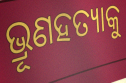
ଭ୍ରୂଣହତ୍ୟାକୁ